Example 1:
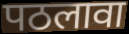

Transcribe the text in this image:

पठलावा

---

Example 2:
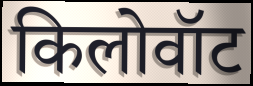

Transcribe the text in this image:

किलोवॉट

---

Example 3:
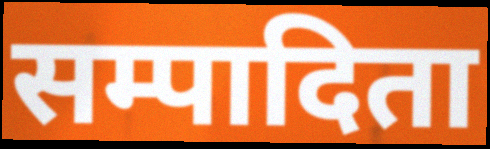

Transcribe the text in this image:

सम्पादिता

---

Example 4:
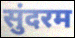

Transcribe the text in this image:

सुंदरम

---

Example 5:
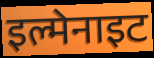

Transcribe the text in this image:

इल्मेनाइट